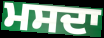
ਮਸਦਾ